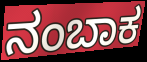
ನಂಬಾಕ